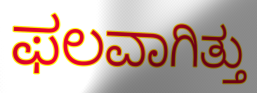
ಫಲವಾಗಿತ್ತು